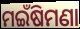
ମଇଁଷିମଣା